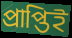
প্রাপ্তিই